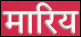
मारिय